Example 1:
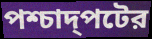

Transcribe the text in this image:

পশ্চাদ্পটের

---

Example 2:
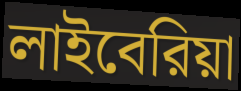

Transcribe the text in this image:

লাইবেরিয়া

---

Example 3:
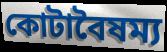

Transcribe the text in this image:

কোটাবৈষম্য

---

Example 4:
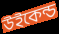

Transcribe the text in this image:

উইকেন্ড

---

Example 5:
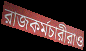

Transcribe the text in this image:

রাজকর্মচারীরাও